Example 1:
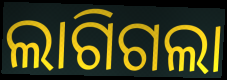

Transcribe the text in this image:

ଲାଗିଗଲା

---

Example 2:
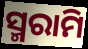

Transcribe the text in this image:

ସ୍ମରାମି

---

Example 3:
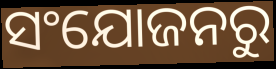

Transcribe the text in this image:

ସଂଯୋଜନରୁ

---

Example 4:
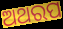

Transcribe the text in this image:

ଅଥରପ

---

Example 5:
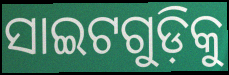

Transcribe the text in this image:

ସାଇଟଗୁଡ଼ିକୁ